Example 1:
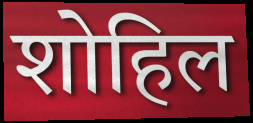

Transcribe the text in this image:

शोहिल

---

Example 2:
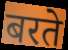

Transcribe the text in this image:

बरते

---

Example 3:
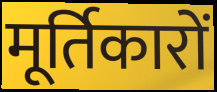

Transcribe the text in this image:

मूर्तिकारों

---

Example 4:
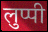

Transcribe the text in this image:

लुप्पी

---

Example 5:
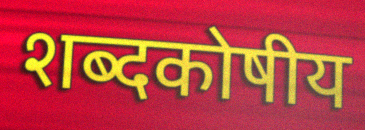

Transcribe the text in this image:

शब्दकोषीय